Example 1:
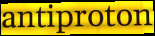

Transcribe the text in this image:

antiproton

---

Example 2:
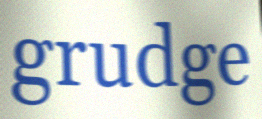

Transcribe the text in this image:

grudge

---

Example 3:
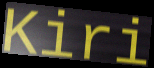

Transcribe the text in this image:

Kiri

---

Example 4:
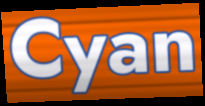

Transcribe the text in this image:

Cyan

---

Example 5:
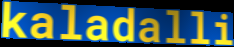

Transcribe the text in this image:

kaladalli